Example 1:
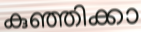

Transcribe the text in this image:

കുഞ്ഞിക്കാ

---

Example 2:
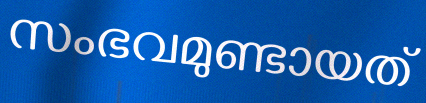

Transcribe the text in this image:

സംഭവമുണ്ടായത്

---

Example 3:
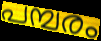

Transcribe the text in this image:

പമ്പരം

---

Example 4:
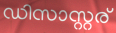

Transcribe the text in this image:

ഡിസാസ്റ്റര്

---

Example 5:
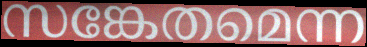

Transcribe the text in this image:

സങ്കേതമെന്ന